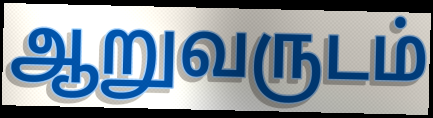
ஆறுவருடம்